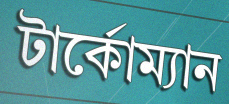
টার্কোম্যান